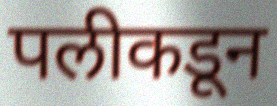
पलीकडून